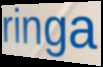
ringa